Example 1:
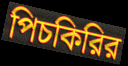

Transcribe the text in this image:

পিচকিরির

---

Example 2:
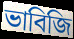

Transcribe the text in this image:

ভাবিজি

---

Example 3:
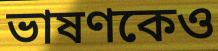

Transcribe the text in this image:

ভাষণকেও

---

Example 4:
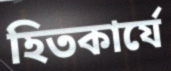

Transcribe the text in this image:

হিতকার্যে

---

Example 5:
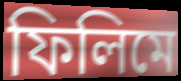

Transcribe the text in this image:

ফিলিমে